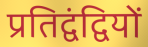
प्रतिद्वंद्वियों